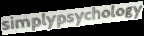
simplypsychology